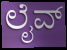
ಲೈವ್